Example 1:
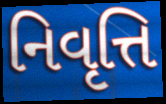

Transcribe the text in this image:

નિવૃત્તિ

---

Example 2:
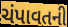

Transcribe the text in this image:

ચંપાવતની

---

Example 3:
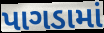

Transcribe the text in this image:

પાગડામાં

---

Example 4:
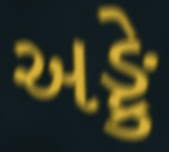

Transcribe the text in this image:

અઙ્કે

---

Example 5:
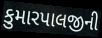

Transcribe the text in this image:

કુમારપાલજીની